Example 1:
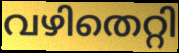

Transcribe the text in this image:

വഴിതെറ്റി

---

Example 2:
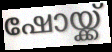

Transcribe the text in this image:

ഷോയ്ക്ക്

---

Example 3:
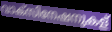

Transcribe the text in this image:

വാക്സിനേഷനുകള്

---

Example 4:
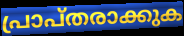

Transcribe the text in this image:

പ്രാപ്തരാക്കുക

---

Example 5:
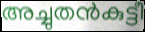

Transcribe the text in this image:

അച്ചുതൻകുട്ടീ